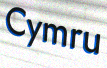
Cymru